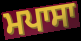
ਮਪਾਸਾ